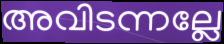
അവിടന്നല്ലേ